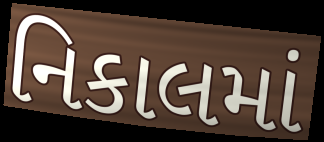
નિકાલમાં